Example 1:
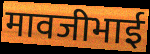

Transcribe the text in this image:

मावजीभाई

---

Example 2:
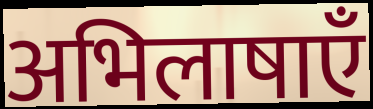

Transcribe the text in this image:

अभिलाषाएँ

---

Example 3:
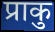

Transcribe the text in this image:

प्राकु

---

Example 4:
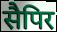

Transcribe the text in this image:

सैपिर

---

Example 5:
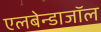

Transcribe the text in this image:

एलबेन्डाजॉल